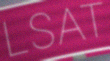
LSAT